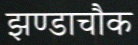
झण्डाचौक